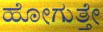
ಹೋಗುತ್ತೇ